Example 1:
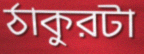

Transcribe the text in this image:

ঠাকুরটা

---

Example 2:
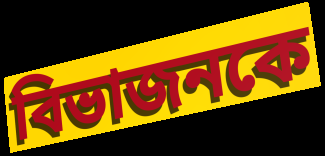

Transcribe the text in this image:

বিভাজনকে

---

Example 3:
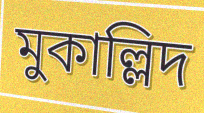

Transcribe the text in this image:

মুকাল্লিদ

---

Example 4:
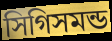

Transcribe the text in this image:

সিগিসমন্ড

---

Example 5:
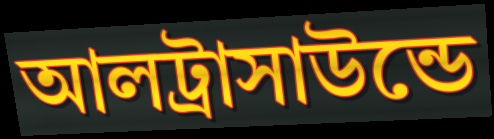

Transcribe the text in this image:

আলট্রাসাউন্ডে